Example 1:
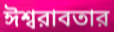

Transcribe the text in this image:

ঈশ্বরাবতার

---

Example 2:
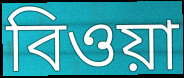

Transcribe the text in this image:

বিওয়া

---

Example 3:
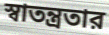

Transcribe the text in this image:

স্বাতন্ত্রতার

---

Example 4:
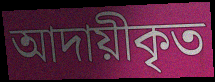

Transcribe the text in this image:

আদায়ীকৃত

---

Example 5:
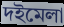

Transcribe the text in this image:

দইমেলা